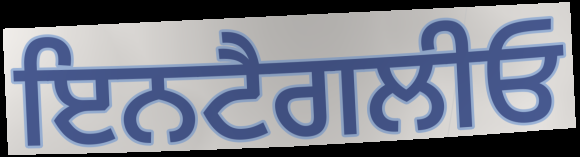
ਇਨਟੈਗਲੀਓ